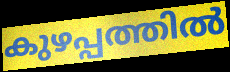
കുഴപ്പത്തിൽ